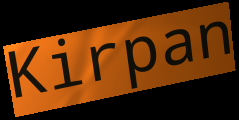
Kirpan